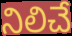
నిలిచే